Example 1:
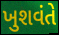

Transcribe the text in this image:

ખુશવંતે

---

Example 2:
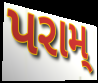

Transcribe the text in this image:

પરામ્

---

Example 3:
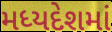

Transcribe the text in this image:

મધ્યદેશમાં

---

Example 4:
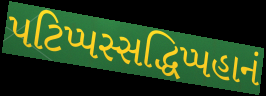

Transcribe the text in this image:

પટિપ્પસ્સદ્ધિપ્પહાનં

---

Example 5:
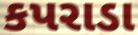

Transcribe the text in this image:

કપરાડા